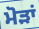
ਮੋੜਾਂ